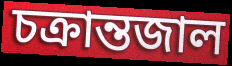
চক্রান্তজাল